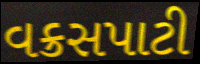
વક્રસપાટી